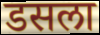
डसला